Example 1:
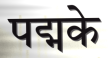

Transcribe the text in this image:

पद्मके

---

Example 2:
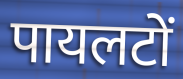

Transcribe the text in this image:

पायलटों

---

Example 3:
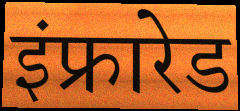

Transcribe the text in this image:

इंफ्रारेड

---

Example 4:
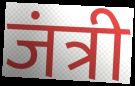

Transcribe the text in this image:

जंत्री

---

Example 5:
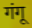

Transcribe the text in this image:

गंगू